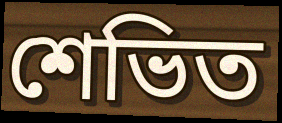
শেভিত